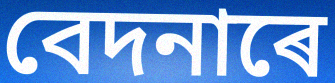
বেদনাৰে